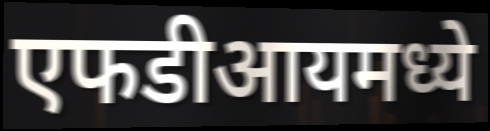
एफडीआयमध्ये